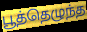
பூத்தெழுந்த